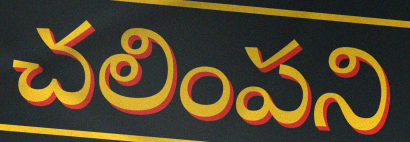
చలింపని